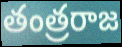
తంత్రరాజ